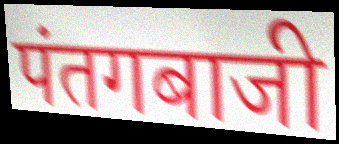
पंतगबाजी